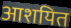
आशयित